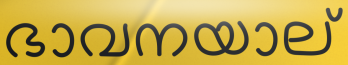
ഭാവനയാല്